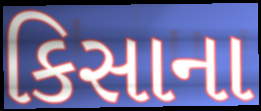
કિસાના